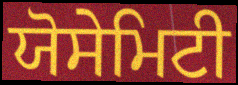
ਯੋਸੇਮਿਟੀ